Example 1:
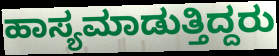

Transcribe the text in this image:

ಹಾಸ್ಯಮಾಡುತ್ತಿದ್ದರು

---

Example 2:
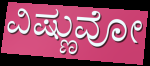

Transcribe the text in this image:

ವಿಷ್ಣುವೋ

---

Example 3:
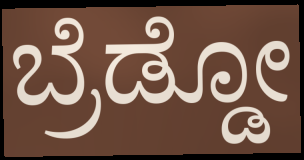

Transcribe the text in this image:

ಬ್ರೆಡ್ಡೋ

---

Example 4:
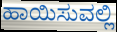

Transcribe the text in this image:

ಹಾಯಿಸುವಲ್ಲಿ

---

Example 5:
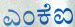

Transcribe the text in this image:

ಎಂಕೆಐ